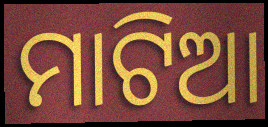
ମାଟିଆ